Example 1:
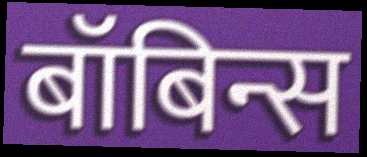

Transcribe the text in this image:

बॉबिन्स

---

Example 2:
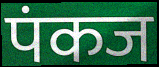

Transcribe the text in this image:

पंकज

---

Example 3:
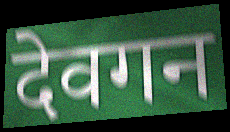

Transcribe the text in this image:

देवगन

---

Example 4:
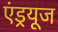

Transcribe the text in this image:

एंड्रयूज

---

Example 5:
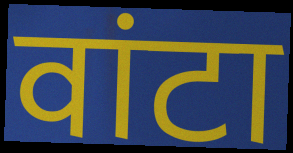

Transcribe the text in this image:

वांटा